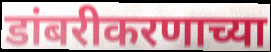
डांबरीकरणाच्या